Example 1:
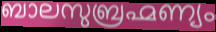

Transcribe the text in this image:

ബാലസുബ്രഹ്മണ്യം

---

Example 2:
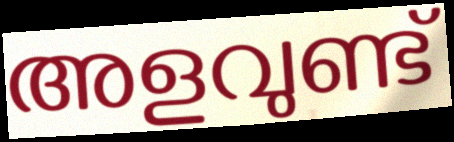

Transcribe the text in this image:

അളവുണ്ട്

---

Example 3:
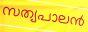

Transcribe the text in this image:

സത്യപാലൻ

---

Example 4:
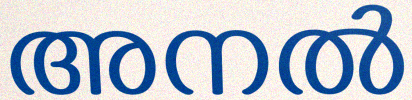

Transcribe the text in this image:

അനൽ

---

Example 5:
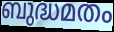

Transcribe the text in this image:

ബുദ്ധമതം